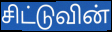
சிட்டுவின்